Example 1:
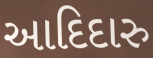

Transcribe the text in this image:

આદિદારુ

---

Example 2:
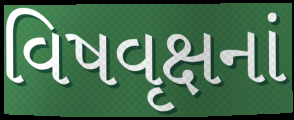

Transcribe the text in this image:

વિષવૃક્ષનાં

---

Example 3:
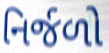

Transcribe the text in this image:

નિર્જળો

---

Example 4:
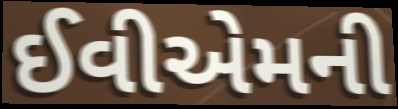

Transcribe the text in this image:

ઈવીએમની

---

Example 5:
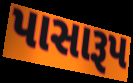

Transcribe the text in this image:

પાસારૂપ